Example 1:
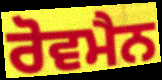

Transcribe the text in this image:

ਰੋਵਮੈਨ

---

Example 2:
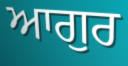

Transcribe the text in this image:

ਆਗੁਰ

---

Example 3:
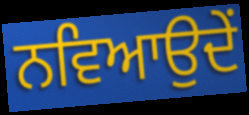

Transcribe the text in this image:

ਨਵਿਆਉਦੇਂ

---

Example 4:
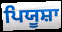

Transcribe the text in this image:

ਪਿਯੂਸ਼ਾ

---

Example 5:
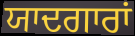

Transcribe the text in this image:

ਯਾਦਗਾਰਾਂ